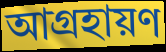
আগ্রহায়ণ